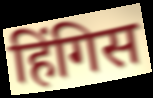
हिंगिस